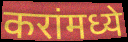
करांमध्ये